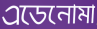
এডেনোমা